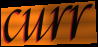
curr